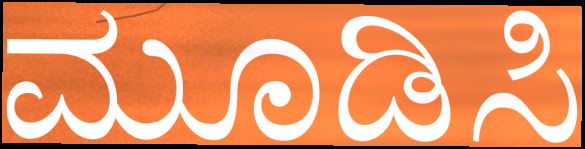
ಮೂಡಿಸಿ